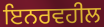
ਇਨਰਵਹੀਲ